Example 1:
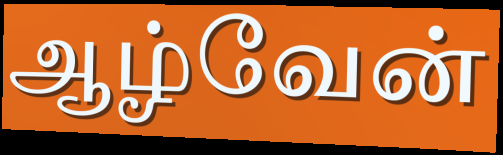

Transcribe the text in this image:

ஆழ்வேன்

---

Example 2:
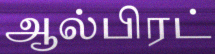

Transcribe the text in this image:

ஆல்பிரட்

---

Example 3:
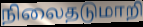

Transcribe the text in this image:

நிலைதடுமாறி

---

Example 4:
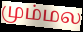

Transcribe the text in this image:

மும்மல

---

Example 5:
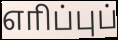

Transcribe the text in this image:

எரிப்புப்